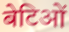
बेटिओं